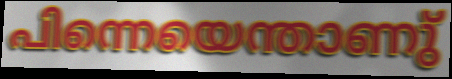
പിന്നെയെന്താണു്